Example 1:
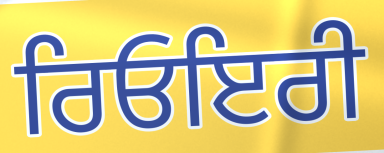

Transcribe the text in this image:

ਰਿਓਇਰੀ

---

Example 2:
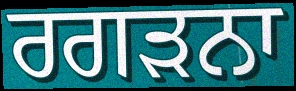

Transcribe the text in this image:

ਰਗੜਨਾ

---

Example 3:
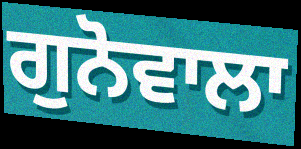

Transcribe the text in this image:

ਗੁਨੋਵਾਲਾ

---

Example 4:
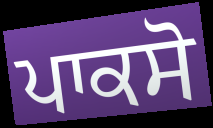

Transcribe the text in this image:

ਪਾਕਸੋ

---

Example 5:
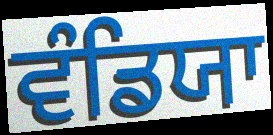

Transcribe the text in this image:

ਵੰਡਿਯਾ